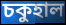
চকুহাল